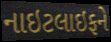
નાઇટલાઇફને